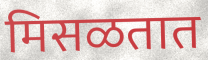
मिसळतात